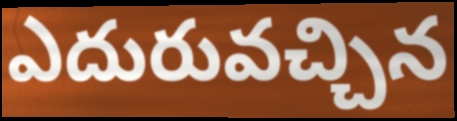
ఎదురువచ్చిన